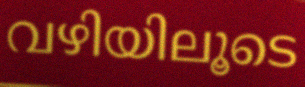
വഴിയിലൂടെ